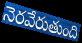
నెరవేరుతుంది